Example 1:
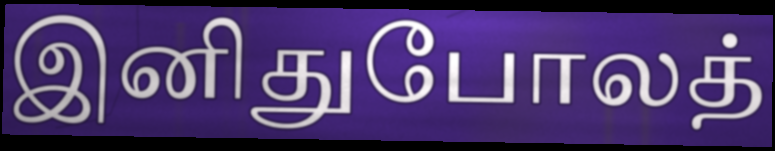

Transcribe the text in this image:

இனிதுபோலத்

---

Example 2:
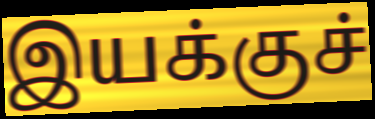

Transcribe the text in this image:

இயக்குச்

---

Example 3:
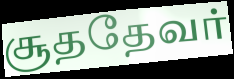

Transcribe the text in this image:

சூததேவர்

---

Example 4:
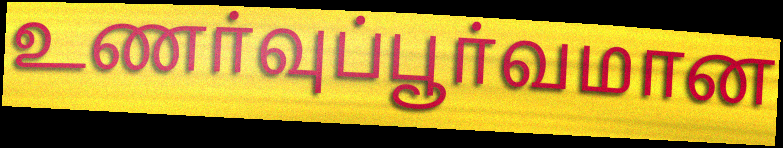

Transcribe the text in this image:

உணர்வுப்பூர்வமான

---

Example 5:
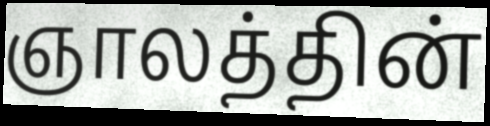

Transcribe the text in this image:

ஞாலத்தின்